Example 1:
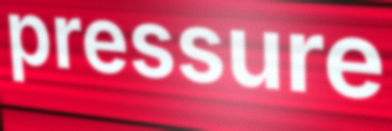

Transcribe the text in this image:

pressure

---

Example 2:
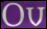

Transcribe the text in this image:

Ou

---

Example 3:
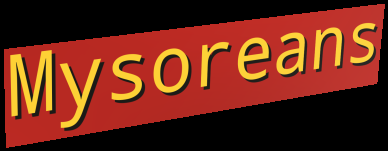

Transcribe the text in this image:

Mysoreans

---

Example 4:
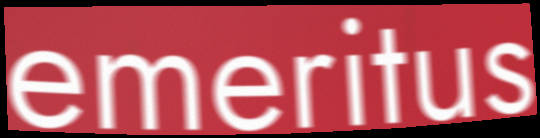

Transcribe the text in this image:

emeritus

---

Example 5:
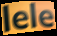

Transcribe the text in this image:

lele